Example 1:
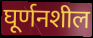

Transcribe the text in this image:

घूर्णनशील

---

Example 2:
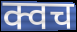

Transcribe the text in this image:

क्वच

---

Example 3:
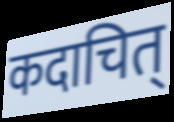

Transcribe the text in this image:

कदाचित्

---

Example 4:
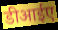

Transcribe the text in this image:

डीआईए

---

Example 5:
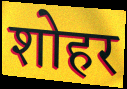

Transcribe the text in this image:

शोहर